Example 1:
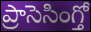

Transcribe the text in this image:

ప్రాసెసింగ్తో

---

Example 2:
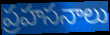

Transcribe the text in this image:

ప్రహసనాలు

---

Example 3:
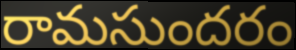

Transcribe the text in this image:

రామసుందరం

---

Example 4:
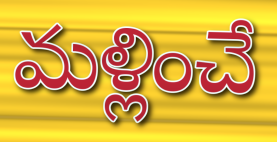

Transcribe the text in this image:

మళ్లించే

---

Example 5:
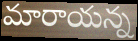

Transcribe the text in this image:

మారాయన్న